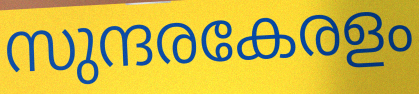
സുന്ദരകേരളം